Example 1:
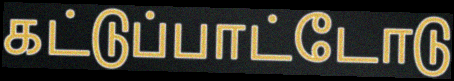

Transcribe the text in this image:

கட்டுப்பாட்டோடு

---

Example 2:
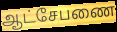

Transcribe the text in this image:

ஆட்சேபணை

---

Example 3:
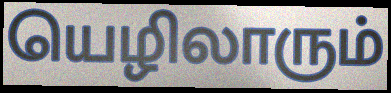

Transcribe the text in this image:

யெழிலாரும்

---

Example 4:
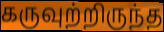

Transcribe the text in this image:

கருவுற்றிருந்த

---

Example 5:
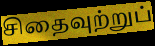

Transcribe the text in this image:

சிதைவுற்றுப்